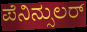
ಪೆನಿನ್ಸುಲರ್